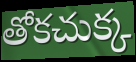
తోకచుక్క